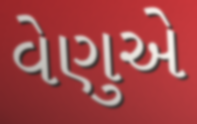
વેણુએ